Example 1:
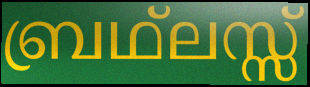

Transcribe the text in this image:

ബ്രഥ്ലസ്സ്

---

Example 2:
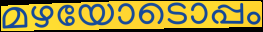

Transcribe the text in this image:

മഴയോടൊപ്പം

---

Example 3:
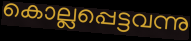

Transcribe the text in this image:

കൊല്ലപ്പെട്ടവന്നു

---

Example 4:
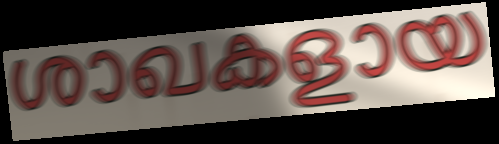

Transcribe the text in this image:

ശാഖകളായ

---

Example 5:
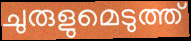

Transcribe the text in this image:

ചുരുളുമെടുത്ത്